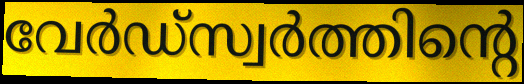
വേർഡ്സ്വർത്തിന്റെ